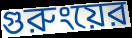
গুরুংয়ের